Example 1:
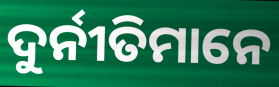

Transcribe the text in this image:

ଦୁର୍ନୀତିମାନେ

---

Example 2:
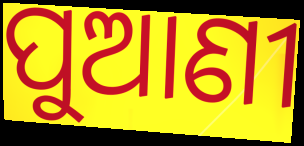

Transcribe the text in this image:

ପୁଆଣୀ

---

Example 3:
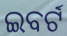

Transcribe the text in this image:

ଇବର୍ଟ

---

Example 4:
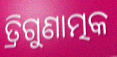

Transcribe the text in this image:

ତ୍ରିଗୁଣାତ୍ମକ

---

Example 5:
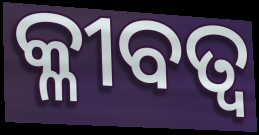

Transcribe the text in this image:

କ୍ଳୀବତ୍ବ